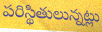
పరిస్థితులున్నట్లు